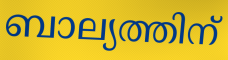
ബാല്യത്തിന്